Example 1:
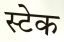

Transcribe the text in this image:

स्टेक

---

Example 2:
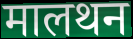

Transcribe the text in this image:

मालथन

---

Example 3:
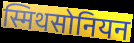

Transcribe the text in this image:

स्मिथसोनियन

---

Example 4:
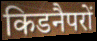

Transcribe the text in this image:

किडनैपरों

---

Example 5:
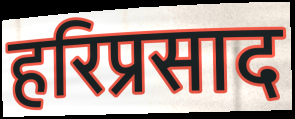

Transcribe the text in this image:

हरिप्रसाद